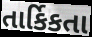
તાર્કિકતા